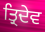
ਤ੍ਰਿਦੇਵ